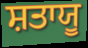
ਸ਼ਤਾਯੂ